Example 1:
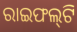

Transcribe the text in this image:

ରାଇଫଲ୍‌ଟି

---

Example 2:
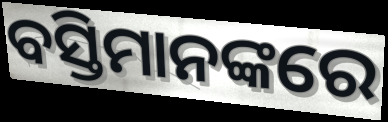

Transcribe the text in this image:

ବସ୍ତିମାନଙ୍କରେ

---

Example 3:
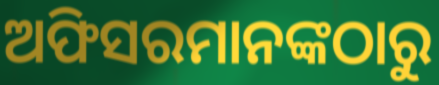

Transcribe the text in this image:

ଅଫିସରମାନଙ୍କଠାରୁ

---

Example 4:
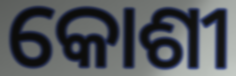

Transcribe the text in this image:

କୋଶୀ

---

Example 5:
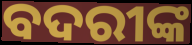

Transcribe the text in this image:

ବଦରୀଙ୍କ